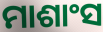
ମାଶାଂସ